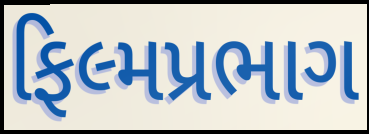
ફિલ્મપ્રભાગ